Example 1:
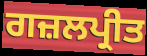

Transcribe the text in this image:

ਗਜ਼ਲਪ੍ਰੀਤ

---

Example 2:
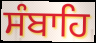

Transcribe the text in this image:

ਸੰਬਾਹਿ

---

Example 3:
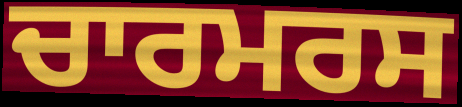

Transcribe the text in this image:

ਚਾਰਮਰਸ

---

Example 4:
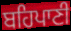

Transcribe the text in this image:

ਬਹਿਪਾਣੀ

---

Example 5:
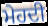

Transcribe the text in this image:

ਮੇਹਦੀ